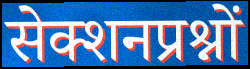
सेक्शनप्रश्नों